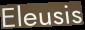
Eleusis